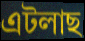
এটলাছ